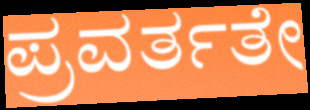
ಪ್ರವರ್ತತೇ